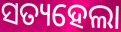
ସତ୍ୟହେଲା